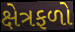
ક્ષેત્રફળો